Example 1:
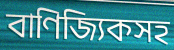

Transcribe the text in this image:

বাণিজ্যিকসহ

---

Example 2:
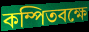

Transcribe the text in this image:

কম্পিতবক্ষে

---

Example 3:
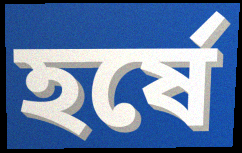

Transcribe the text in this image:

হর্ষে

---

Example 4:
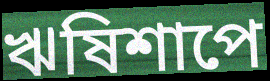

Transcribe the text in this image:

ঋষিশাপে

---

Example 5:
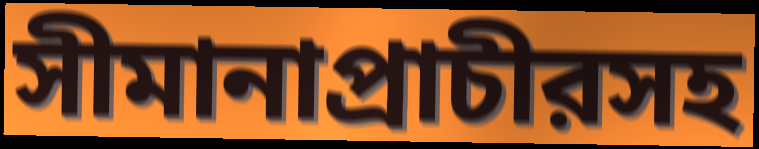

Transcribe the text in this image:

সীমানাপ্রাচীরসহ